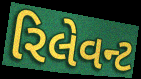
રિલેવન્ટ